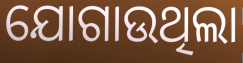
ଯୋଗାଉଥିଲା